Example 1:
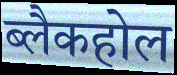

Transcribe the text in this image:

ब्लैकहोल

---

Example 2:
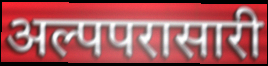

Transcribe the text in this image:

अल्पपरासारी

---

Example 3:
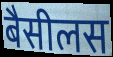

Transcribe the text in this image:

बैसीलस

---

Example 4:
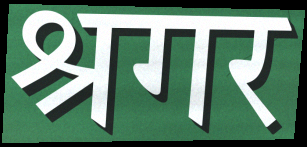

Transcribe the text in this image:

श्रगर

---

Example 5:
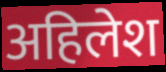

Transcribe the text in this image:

अहिलेश